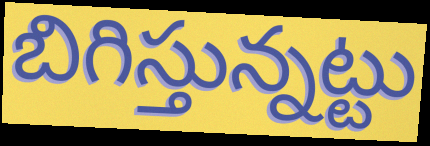
బిగిస్తున్నట్టు